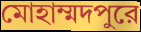
মোহাম্মদপুরে